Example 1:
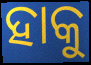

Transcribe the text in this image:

ହାକୁ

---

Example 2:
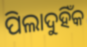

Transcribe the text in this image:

ପିଲାଦୁହିଁକ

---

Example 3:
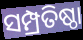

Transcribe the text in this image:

ସମ୍ପ୍ରତିଷ୍ଠା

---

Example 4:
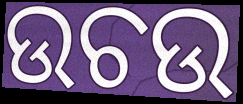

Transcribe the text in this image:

ଉଚଉ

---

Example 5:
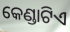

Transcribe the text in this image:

କେଣ୍ଡାଟିଏ